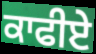
ਕਾਫੀਏ